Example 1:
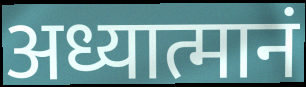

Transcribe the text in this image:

अध्यात्मानं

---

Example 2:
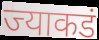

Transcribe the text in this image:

ज्याकडं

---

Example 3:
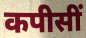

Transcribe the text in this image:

कपीसीं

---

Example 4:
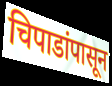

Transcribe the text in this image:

चिपाडांपासून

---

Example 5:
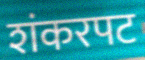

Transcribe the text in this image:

शंकरपट